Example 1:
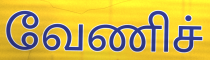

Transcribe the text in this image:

வேணிச்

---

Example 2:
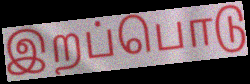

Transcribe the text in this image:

இறப்பொடு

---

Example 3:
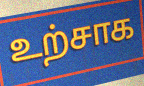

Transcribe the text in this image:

உற்சாக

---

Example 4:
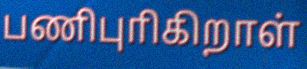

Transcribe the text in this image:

பணிபுரிகிறாள்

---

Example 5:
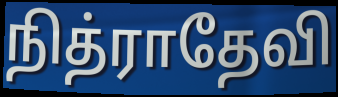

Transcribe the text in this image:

நித்ராதேவி